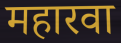
महारवा